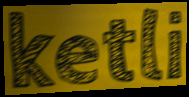
ketli